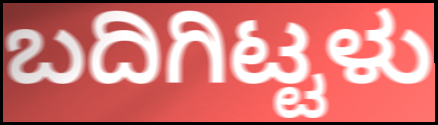
ಬದಿಗಿಟ್ಟಳು